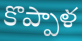
కొప్పాళ